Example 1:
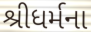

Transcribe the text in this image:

શ્રીધર્મના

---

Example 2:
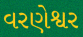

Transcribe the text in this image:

વરણેશ્વર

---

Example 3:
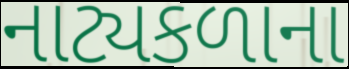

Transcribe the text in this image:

નાટ્યકળાના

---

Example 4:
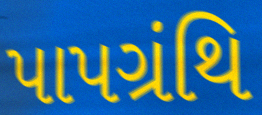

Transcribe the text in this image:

પાપગ્રંથિ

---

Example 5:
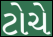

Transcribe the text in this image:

ટોચે